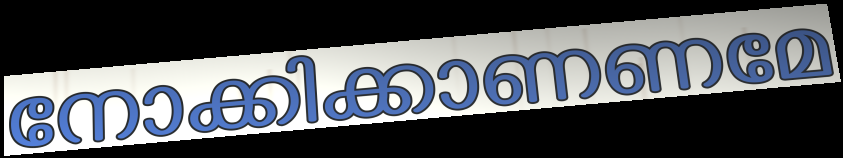
നോക്കിക്കാണണമേ